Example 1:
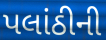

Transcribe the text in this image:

પલાંઠીની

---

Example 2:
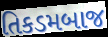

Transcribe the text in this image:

તિકડમબાજ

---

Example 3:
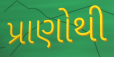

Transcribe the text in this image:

પ્રાણોથી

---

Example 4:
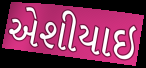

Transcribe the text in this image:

એશીયાઇ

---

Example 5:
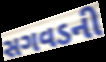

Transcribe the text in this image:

સગવડની